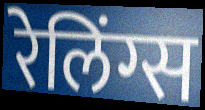
रेलिंग्स